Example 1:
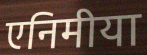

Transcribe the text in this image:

एनिमीया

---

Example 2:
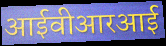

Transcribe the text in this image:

आईवीआरआई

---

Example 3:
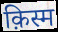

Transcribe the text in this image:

क़िस्‍म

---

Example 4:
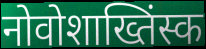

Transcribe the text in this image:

नोवोशाख्तिंस्क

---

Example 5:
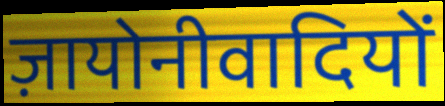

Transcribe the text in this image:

ज़ायोनीवादियों